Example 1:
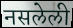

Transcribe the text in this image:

नसलेली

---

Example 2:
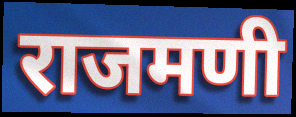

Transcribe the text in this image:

राजमणी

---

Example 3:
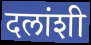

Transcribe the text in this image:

दलांशी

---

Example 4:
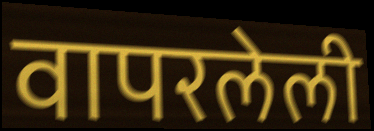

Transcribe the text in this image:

वापरलेली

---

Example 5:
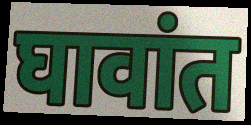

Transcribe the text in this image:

घावांत